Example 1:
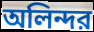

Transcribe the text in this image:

অলিন্দর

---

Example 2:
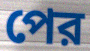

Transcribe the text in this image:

পের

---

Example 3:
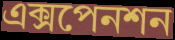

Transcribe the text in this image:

এক্সপেনশন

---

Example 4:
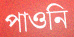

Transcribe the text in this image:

পাওনি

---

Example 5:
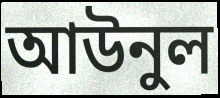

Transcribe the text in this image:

আউনুল